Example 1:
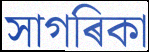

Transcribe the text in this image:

সাগৰিকা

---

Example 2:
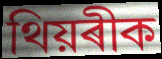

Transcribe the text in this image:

থিয়ৰীক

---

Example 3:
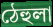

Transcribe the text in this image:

ঠেহুলা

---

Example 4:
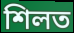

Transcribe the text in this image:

শিলত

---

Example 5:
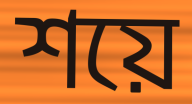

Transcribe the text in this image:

শয়ে